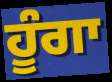
ਹੂੰਗਾ